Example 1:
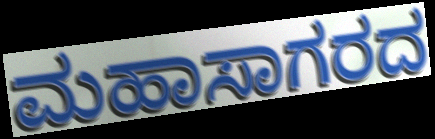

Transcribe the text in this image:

ಮಹಾಸಾಗರದ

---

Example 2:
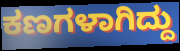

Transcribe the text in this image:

ಕಣಗಳಾಗಿದ್ದು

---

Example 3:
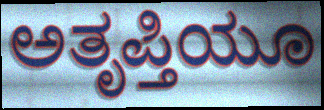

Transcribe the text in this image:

ಅತೃಪ್ತಿಯೂ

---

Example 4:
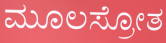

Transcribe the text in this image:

ಮೂಲಸ್ರೋತ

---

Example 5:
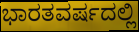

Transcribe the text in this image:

ಭಾರತವರ್ಷದಲ್ಲಿ